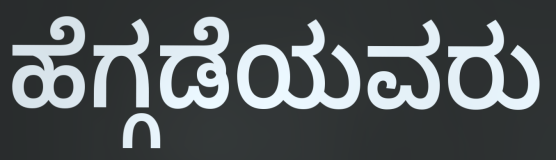
ಹೆಗ್ಗಡೆಯವರು